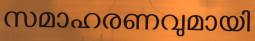
സമാഹരണവുമായി